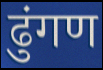
ढुंगण